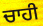
ਚਾਹੀ